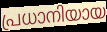
പ്രധാനിയായ